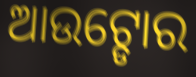
ଆଉଟ୍ଡୋର